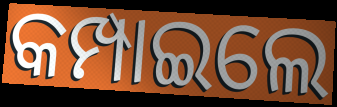
କମ୍ପାଇଲେ